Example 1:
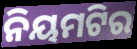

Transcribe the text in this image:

ନିୟମଟିର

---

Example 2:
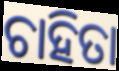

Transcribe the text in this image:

ଚାହିତା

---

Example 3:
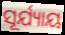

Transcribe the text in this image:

ସୂର୍ଯ୍ୟାୟ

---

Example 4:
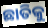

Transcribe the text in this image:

ଛାତିକୁ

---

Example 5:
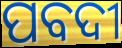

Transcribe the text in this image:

ପବଦୀ